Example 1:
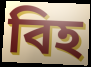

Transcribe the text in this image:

বিহ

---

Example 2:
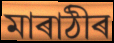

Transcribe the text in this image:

মাৰাঠীৰ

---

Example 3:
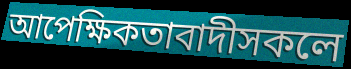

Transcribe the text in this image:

আপেক্ষিকতাবাদীসকলে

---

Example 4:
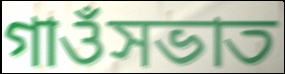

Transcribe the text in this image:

গাওঁসভাত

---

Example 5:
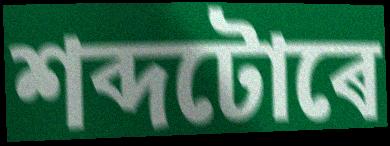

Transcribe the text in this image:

শব্দটোৰে